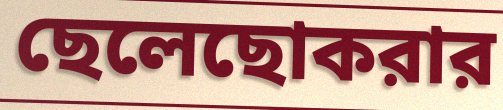
ছেলেছোকরার